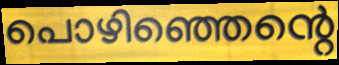
പൊഴിഞ്ഞെന്റെ